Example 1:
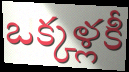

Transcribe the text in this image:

ఒక్కళ్లకీ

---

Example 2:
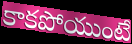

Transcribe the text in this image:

కాకపోయుంటే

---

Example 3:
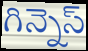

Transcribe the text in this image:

గిన్నెస్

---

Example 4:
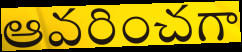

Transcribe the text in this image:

ఆవరించగా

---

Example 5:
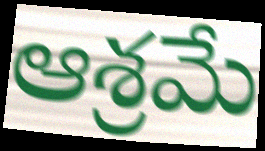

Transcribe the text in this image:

ఆశ్రమే